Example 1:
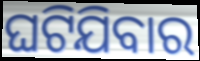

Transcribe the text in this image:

ଘଟିଯିବାର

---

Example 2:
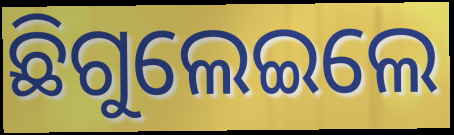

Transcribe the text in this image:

ଛିଗୁଲେଇଲେ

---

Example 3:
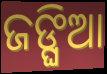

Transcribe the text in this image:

ଜଙ୍ଘିଆ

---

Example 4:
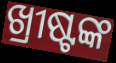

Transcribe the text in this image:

ଖ୍ରୀଷ୍ଟଙ୍କ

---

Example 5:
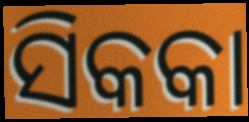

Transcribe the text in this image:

ସିକକା